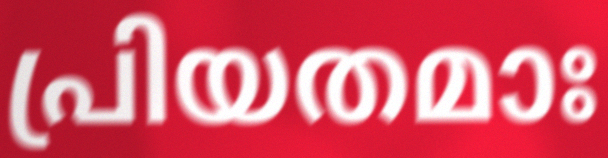
പ്രിയതമാഃ